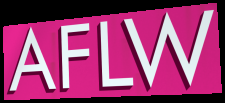
AFLW